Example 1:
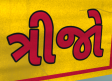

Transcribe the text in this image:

ત્રીજો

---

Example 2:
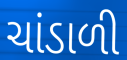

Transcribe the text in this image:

ચાંડાળી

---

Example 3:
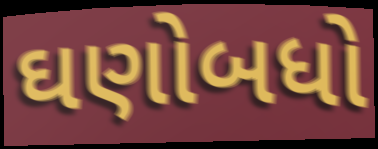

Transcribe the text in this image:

ઘણોબધો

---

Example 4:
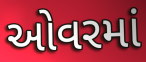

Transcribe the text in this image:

ઓવરમાં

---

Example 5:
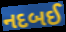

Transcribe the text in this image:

નદબઈ